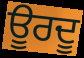
ਊਰਦੂ